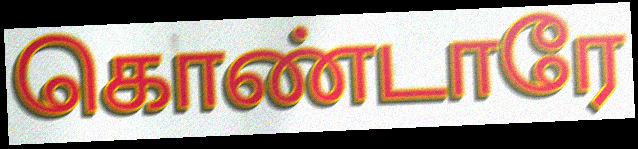
கொண்டாரே